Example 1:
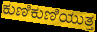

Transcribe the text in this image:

ಕುಣಿಕುಣಿಯುತ್ತ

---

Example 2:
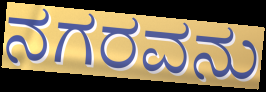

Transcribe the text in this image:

ನಗರವನು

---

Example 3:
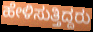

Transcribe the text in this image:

ಹೇಳಿಸುತ್ತಿದ್ದರು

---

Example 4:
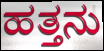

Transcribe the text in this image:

ಹತ್ತನು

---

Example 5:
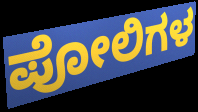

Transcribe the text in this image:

ಪೋಲಿಗಳ